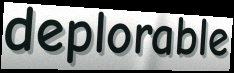
deplorable